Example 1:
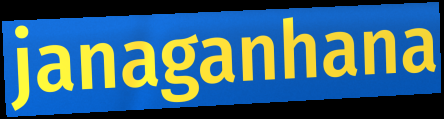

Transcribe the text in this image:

janaganhana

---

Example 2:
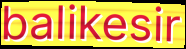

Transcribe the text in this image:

balikesir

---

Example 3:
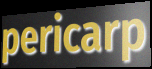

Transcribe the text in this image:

pericarp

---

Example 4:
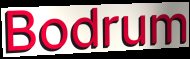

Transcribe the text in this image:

Bodrum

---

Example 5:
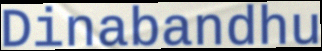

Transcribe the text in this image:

Dinabandhu